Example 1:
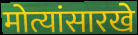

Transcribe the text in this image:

मोत्यांसारखे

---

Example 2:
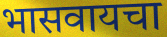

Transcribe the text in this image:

भासवायचा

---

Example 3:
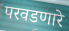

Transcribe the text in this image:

परवडणारे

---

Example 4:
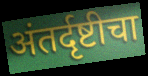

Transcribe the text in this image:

अंतर्दृष्टीचा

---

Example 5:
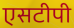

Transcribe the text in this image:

एसटीपी